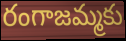
రంగాజమ్మకు